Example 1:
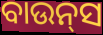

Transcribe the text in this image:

ବାଉନ୍‍ସ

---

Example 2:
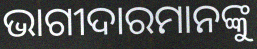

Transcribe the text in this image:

ଭାଗୀଦାରମାନଙ୍କୁ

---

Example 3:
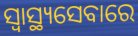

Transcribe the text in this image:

ସ୍ୱାସ୍ଥ୍ୟସେବାରେ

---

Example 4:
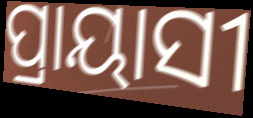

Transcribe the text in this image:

ପ୍ରାୟାସୀ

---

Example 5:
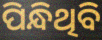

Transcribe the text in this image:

ପିନ୍ଧିଥିବି